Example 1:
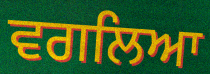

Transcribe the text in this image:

ਵਗਲਿਆ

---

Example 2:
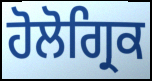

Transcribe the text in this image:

ਹੋਲੋਗ੍ਰਿਕ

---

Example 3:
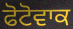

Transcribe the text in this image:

ਫੋਟੋਵਾਕ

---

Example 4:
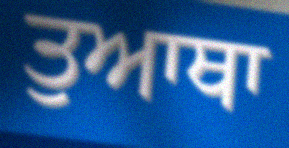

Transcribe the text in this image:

ਤੁਆਥਾ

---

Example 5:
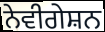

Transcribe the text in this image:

ਨੇਵੀਗੇਸ਼ਨ